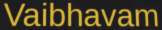
Vaibhavam